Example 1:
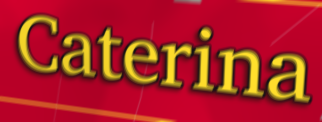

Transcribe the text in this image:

Caterina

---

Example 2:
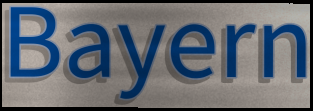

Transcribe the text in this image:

Bayern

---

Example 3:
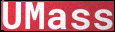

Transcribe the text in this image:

UMass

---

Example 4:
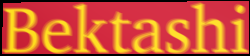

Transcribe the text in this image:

Bektashi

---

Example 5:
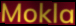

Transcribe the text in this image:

Mokla